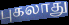
புகலாது